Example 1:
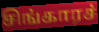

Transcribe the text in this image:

சிங்காரச்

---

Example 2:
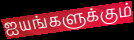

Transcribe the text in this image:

ஐயங்களுக்கும்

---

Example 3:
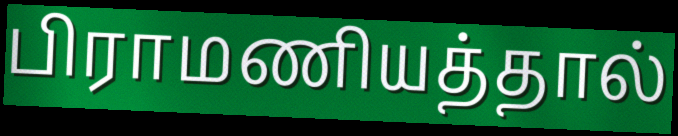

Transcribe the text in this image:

பிராமணியத்தால்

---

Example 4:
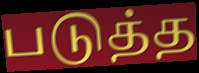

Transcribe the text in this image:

படுத்த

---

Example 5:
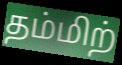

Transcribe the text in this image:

தம்மிற்